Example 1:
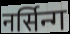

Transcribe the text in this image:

नर्सिन्ग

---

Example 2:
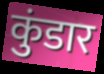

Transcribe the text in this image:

कुंडार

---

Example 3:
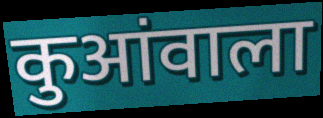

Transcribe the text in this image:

कुआंवाला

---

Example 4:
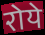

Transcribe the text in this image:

रोये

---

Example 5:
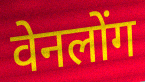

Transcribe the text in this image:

वेनलोंग